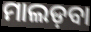
ମାଲଡ଼ବା